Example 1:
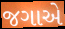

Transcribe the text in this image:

જગાએ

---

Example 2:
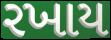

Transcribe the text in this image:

રખાય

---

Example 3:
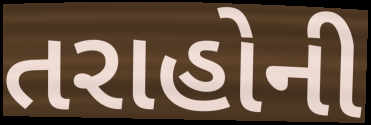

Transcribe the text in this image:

તરાહોની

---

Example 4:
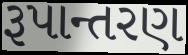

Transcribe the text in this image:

રૂપાન્તરણ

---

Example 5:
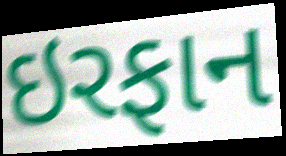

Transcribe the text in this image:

ઇરફાન